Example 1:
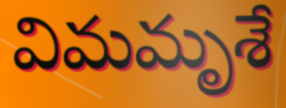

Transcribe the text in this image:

విమమృశే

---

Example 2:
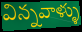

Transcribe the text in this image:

విన్నవాళ్ళు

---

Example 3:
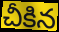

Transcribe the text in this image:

చీకిన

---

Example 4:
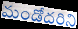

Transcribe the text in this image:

మండోదరిని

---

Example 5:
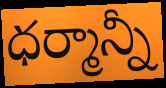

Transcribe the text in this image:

ధర్మాన్నీ